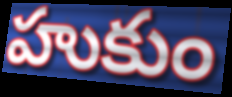
హుకుం